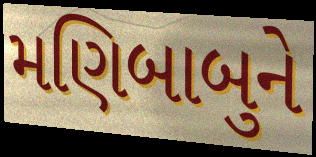
મણિબાબુને